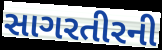
સાગરતીરની